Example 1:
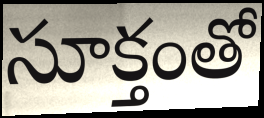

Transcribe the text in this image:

సూక్తంతో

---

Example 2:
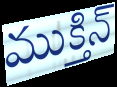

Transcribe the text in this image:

ముక్తిన్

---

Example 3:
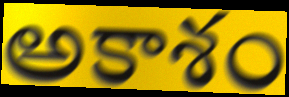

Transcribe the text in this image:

అకాశం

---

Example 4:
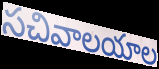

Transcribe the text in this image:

సచివాలయాల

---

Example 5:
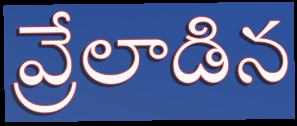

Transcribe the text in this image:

వ్రేలాడిన